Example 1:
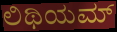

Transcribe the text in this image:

ಲಿಥಿಯಮ್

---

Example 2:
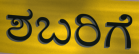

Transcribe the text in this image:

ಶಬರಿಗೆ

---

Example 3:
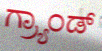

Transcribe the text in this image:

ಗ್ರ್ಯಾಂಡ್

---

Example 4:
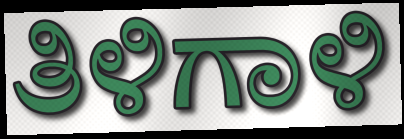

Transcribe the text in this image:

ತಿಳಿಗಾಳಿ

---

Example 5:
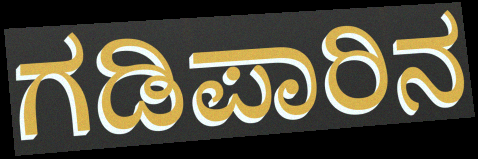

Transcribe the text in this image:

ಗಡಿಪಾರಿನ